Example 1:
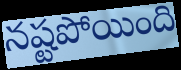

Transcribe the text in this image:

నష్టపోయింది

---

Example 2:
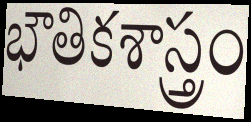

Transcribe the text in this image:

భౌతికశాస్త్రం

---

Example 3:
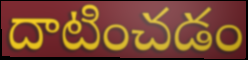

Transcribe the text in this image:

దాటించడం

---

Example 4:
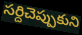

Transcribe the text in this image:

సర్దిచెప్పుకుని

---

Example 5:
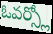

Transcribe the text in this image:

ఓవర్స్లో